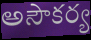
అసౌకర్య